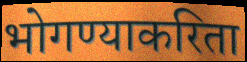
भोगण्याकरिता